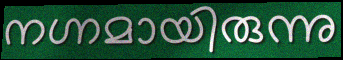
നഗ്നമായിരുന്നു